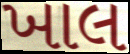
ખાલ